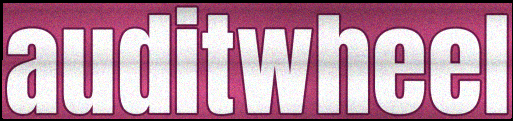
auditwheel